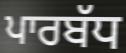
ਪਾਰਬੱਧ